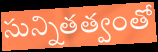
సున్నితత్వంతో